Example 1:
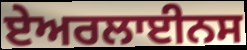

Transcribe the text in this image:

ਏਅਰਲਾਈਨਸ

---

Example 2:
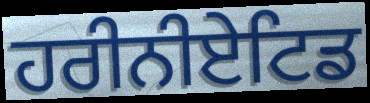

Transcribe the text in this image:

ਹਰੀਨੀਏਟਿਡ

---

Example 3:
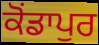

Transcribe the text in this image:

ਕੋਂਡਾਪੁਰ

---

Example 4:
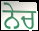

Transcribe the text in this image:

ਨੇਚ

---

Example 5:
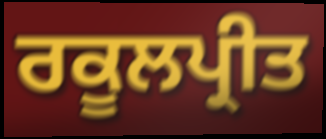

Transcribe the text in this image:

ਰਕੂਲਪ੍ਰੀਤ